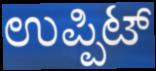
ಉಪ್ಪಿಟ್